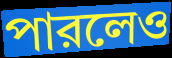
পারলেও